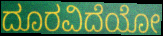
ದೂರವಿದೆಯೋ